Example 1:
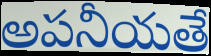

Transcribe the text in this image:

అపనీయతే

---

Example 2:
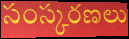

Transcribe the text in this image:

సంస్కరణలు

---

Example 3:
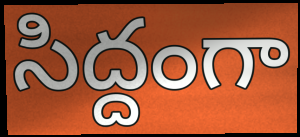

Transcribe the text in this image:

సిద్దంగా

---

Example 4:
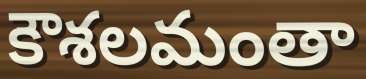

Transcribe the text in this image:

కౌశలమంతా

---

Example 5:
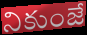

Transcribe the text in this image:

నికుంజే